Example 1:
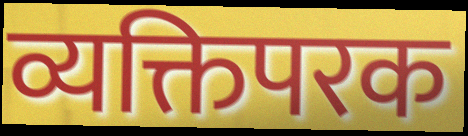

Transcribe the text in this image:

व्यक्तिपरक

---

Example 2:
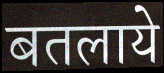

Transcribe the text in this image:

बतलाये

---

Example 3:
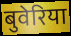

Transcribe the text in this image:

बुवेरिया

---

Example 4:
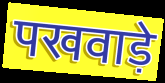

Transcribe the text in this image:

पखवाड़े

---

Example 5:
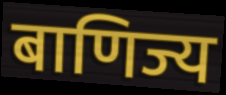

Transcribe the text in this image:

बाणिज्य